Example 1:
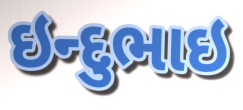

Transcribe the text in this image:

ઇન્દુભાઇ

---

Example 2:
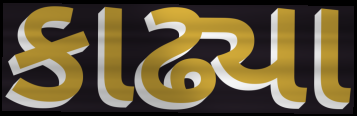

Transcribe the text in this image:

કાઢ્યા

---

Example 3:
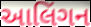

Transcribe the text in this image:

આલિંગન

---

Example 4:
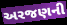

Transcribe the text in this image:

અરજણની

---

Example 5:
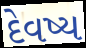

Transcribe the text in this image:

દેવષ્ય